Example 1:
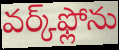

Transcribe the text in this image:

వర్క్‌ఫ్లోను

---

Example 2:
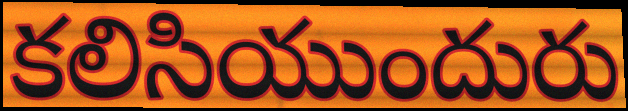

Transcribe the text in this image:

కలిసియుందురు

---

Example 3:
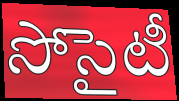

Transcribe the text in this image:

సోసైటీ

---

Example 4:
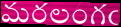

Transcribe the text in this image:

మరలంగఁ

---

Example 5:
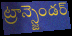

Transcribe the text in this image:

ట్రాన్స్జెండర్